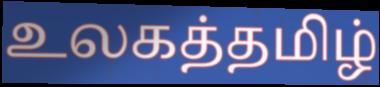
உலகத்தமிழ்